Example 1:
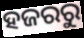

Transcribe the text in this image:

ହଜରରୁ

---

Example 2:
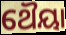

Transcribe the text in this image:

ଥୈୟା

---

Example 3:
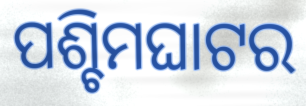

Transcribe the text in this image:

ପଶ୍ଚିମଘାଟର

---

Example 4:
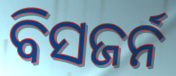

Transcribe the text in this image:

ବିସଜର୍ନ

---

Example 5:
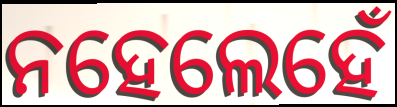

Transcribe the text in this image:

ନହେଲେହେଁ